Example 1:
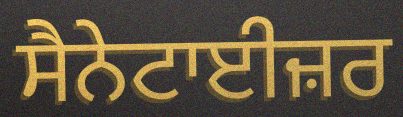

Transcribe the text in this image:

ਸੈਨੇਟਾਈਜ਼ਰ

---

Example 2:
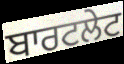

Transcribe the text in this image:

ਬਾਰਟਲੇਟ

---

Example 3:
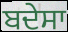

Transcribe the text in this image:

ਬਦੇਸਾ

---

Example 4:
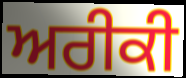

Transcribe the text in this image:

ਅਰੀਕੀ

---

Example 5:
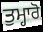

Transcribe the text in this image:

ਤੁਮ੍ਹ੍ਹਾਰੋ